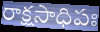
రాక్షసాధిపః